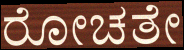
ರೋಚತೇ